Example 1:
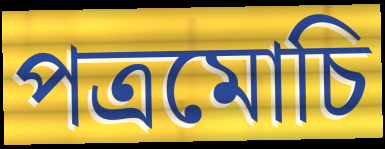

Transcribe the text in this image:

পত্রমোচি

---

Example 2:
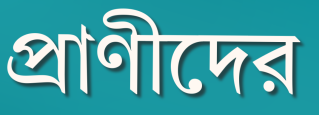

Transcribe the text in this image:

প্রাণীদের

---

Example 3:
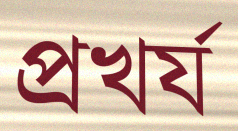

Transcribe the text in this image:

প্রখর্য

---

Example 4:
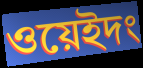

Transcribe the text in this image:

ওয়েইদং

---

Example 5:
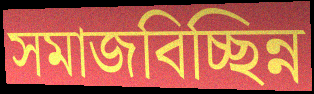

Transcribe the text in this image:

সমাজবিচ্ছিন্ন